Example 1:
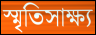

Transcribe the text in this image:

স্মৃতিসাক্ষ্য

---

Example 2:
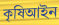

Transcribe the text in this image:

কৃষিআইন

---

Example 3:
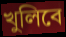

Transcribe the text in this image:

খুলিবে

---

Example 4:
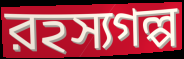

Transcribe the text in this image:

রহস্যগল্প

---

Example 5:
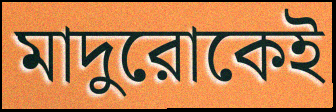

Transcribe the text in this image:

মাদুরোকেই